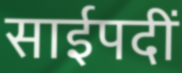
साईपदीं